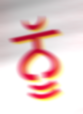
ਨੂੱ